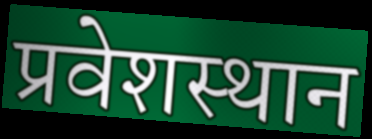
प्रवेशस्थान